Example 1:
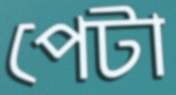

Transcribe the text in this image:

পেটা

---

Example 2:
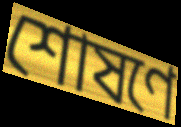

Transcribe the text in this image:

শোষণে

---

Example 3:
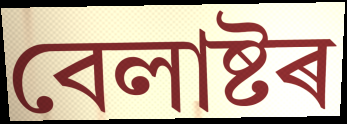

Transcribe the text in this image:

বেলাষ্টৰ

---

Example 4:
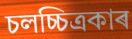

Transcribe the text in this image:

চলচ্চিত্ৰকাৰ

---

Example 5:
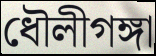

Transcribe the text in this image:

ধৌলীগঙ্গা